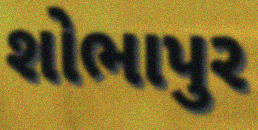
શોભાપુર